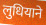
लुधियाने